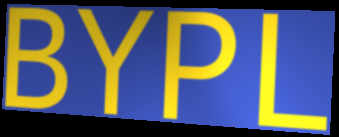
BYPL